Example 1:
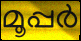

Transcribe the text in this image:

മൂപ്പർ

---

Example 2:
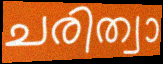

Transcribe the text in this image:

ചരിത്വാ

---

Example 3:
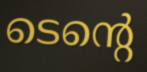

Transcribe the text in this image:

ടെന്റെ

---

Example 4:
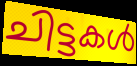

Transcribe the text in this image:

ചിട്ടകൾ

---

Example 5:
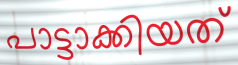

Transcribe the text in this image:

പാട്ടാക്കിയത്